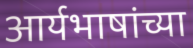
आर्यभाषांच्या